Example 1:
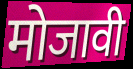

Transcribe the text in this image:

मोजावी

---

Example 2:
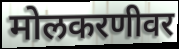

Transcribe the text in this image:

मोलकरणीवर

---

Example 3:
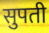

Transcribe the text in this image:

सुपती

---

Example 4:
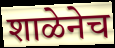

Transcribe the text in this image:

शाळेनेच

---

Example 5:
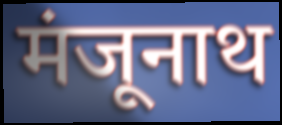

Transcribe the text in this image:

मंजूनाथ